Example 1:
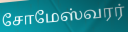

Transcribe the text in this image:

சோமேஸ்வரர்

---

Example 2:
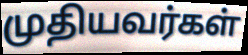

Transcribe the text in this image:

முதியவர்கள்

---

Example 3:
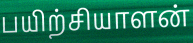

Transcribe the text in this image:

பயிற்சியாளன்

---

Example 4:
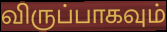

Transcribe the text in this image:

விருப்பாகவும்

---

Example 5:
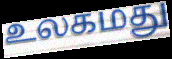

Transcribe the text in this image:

உலகமது